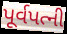
પૂર્વપત્ની